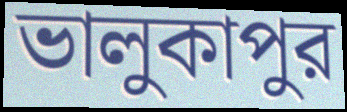
ভালুকাপুর